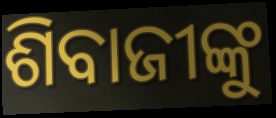
ଶିବାଜୀଙ୍କୁ